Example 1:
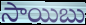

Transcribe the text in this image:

సాయిబు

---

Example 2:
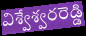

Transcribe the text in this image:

విశ్వేశ్వరరెడ్డి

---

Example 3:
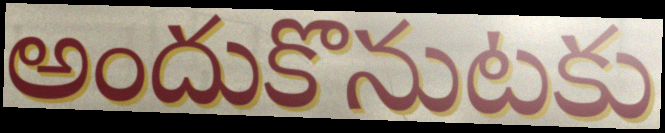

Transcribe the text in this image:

అందుకొనుటకు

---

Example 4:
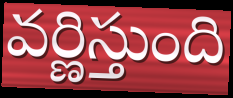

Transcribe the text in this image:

వర్ణిస్తుంది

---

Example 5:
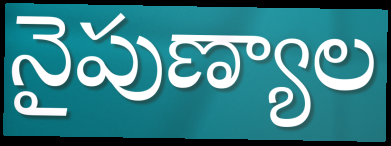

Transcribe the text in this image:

నైపుణ్యాల